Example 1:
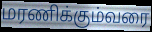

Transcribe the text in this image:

மரணிக்கும்வரை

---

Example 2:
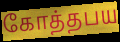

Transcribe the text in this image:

கோத்தபய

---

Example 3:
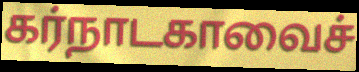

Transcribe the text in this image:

கர்நாடகாவைச்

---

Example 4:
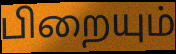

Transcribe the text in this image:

பிறையும்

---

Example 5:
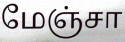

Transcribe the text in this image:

மேஞ்சா